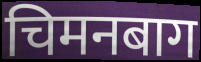
चिमनबाग